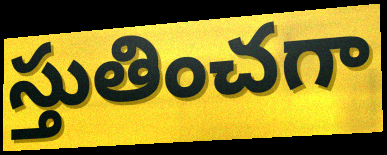
స్తుతించగా